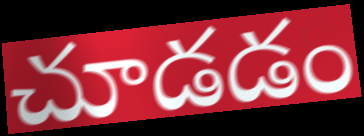
చూడడం